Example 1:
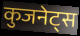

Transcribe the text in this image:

कुजनेट्स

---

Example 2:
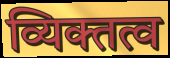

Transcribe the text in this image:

व्यिक्तत्व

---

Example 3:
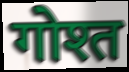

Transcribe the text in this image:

गोश्‍त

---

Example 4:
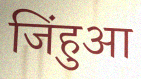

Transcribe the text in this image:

जिंहुआ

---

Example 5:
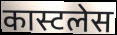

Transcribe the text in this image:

कास्टलेस